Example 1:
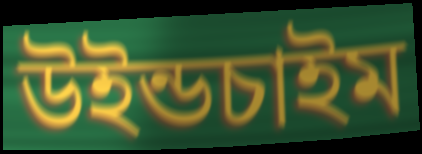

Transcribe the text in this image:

উইন্ডচাইম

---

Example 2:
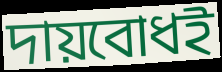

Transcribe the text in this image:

দায়বোধই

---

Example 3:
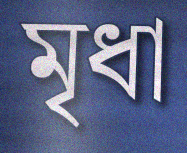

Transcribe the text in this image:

মৃধা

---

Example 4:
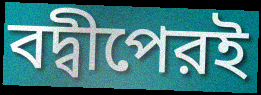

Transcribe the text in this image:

বদ্বীপেরই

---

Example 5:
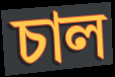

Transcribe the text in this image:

চাল